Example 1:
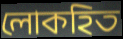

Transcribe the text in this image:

লোকহিত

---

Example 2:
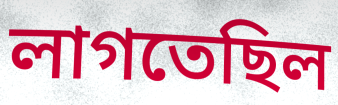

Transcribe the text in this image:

লাগতেছিল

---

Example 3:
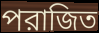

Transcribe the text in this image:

পরাজিত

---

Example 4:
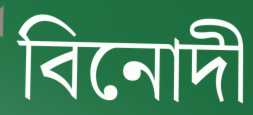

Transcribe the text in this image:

বিনোদী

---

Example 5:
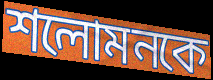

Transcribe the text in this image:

শলোমনকে